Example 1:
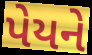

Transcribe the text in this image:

પેયને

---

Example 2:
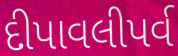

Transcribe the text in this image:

દીપાવલીપર્વ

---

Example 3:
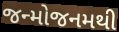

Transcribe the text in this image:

જન્મોજનમથી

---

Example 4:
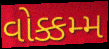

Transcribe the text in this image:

વોક્કમ્મ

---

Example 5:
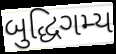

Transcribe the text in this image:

બુદ્ધિગમ્ય